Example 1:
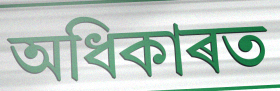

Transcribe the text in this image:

অধিকাৰত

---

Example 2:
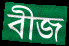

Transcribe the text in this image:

বীজ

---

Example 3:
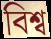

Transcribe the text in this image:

বিশ্ব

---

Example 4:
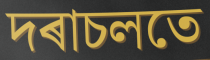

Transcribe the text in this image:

দৰাচলতে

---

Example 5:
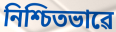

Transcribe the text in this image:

নিশ্চিতভাৱে